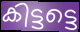
കിട്ടട്ടെ